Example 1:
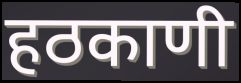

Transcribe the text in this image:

हठकाणी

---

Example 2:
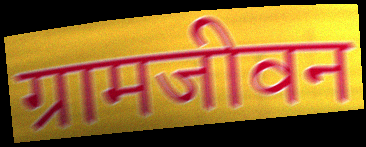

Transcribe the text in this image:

ग्रामजीवन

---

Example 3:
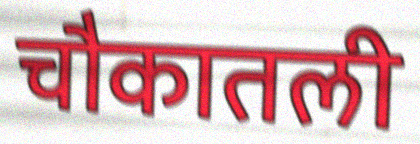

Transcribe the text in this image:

चौकातली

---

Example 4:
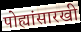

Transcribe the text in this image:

पोह्यांसारखी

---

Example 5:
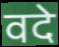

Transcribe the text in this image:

वदे